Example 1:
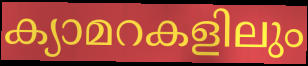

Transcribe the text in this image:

ക്യാമറകളിലും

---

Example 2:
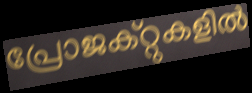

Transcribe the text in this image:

പ്രോജക്റ്റുകളിൽ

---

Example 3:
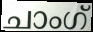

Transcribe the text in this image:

ചാംഗ്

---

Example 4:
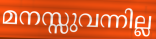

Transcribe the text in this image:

മനസ്സുവന്നില്ല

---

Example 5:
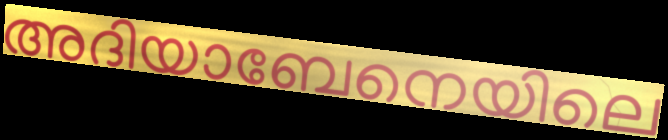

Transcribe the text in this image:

അദിയാബേനെയിലെ